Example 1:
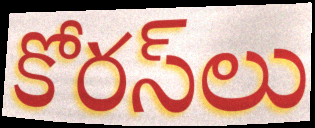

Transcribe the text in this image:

కోరస్‌లు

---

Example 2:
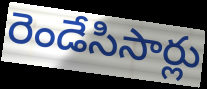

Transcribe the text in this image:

రెండేసిసార్లు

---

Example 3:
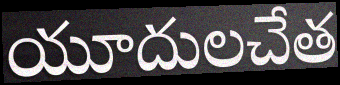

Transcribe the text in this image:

యూదులచేత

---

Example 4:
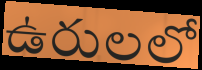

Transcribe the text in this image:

ఉరులలో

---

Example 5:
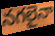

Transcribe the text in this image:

నగలైనా